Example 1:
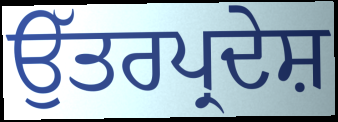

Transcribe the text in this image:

ਉੱਤਰਪ੍ਰਦੇਸ਼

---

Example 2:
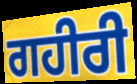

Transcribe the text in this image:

ਗਹੀਰੀ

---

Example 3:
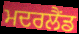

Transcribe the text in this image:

ਮਦਰਲੈਂਡ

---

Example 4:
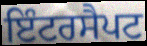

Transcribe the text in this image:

ਇੰਟਰਸੈਪਟ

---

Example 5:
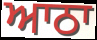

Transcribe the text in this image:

ਆਠਾ